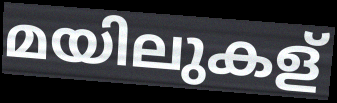
മയിലുകള്